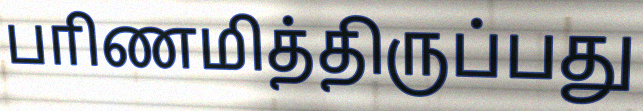
பரிணமித்திருப்பது